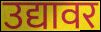
उद्यावर